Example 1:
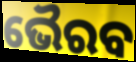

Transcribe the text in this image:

ଭୈରବ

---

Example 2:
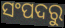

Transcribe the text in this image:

ସଂପଦରୁ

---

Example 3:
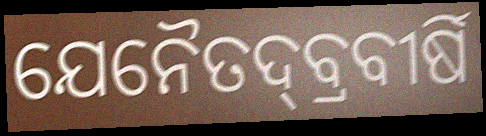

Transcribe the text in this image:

ଯେନୈତଦ୍‌ବ୍ରବୀର୍ଷି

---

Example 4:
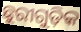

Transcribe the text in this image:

ଛୁରୀଗୁଡ଼ିକ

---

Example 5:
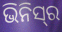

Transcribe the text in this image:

ଭିନିସ୍‌ର